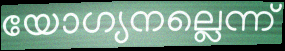
യോഗ്യനല്ലെന്ന്